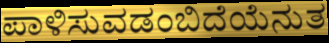
ಪಾಳಿಸುವಡಂಬಿದೆಯೆನುತ